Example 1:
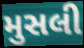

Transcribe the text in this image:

મુસલી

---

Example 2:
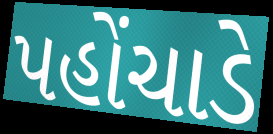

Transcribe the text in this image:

પહોંચાડે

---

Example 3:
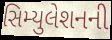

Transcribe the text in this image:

સિમ્યુલેશનની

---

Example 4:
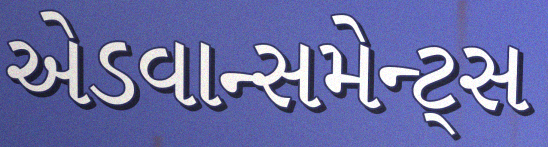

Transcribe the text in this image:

એડવાન્સમેન્ટ્સ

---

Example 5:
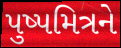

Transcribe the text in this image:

પુષ્પમિત્રને